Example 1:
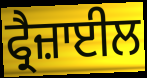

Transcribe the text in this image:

ਫ੍ਰੈਜ਼ਾਈਲ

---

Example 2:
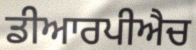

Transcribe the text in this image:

ਡੀਆਰਪੀਐਚ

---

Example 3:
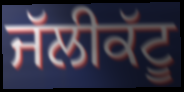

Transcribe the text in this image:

ਜੱਲੀਕੱਟੂ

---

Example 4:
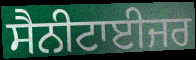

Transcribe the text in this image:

ਸੈਨੀਟਾਈਜਰ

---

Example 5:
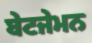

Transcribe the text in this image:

ਬੇਟਜੇਮਨ